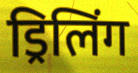
ड्रिलिंग